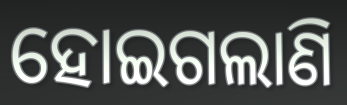
ହୋଇଗଲାଣି